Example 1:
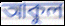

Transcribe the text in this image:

আকুল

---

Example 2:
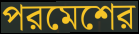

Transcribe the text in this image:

পরমেশের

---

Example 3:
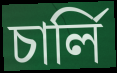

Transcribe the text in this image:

চার্লি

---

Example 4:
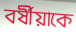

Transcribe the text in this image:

বর্ষীয়াকে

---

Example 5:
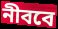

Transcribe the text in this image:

নীববে